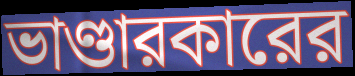
ভাণ্ডারকারের